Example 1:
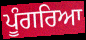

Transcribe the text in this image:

ਪੂੰਗਰਿਆ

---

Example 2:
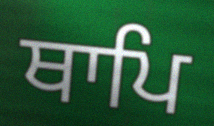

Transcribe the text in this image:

ਥਾਪਿ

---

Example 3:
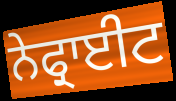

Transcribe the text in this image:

ਨੇਫ੍ਰਾਈਟ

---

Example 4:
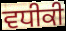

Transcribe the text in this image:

ਵਧੀਕੀ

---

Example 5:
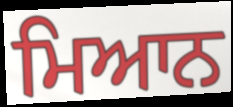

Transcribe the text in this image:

ਮਿਆਨ